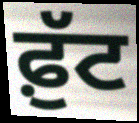
ਫ਼ੁੱਟ